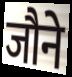
जौने